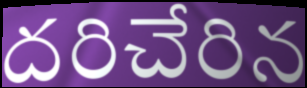
దరిచేరిన